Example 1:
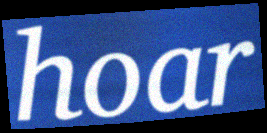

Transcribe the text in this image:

hoar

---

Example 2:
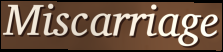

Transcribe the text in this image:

Miscarriage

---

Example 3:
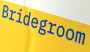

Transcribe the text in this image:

Bridegroom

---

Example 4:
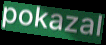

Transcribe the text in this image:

pokazal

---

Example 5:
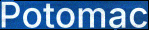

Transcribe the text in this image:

Potomac